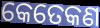
କେତେକଣ